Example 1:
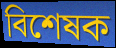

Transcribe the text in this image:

বিশেষক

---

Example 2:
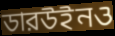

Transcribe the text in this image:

ডারউইনও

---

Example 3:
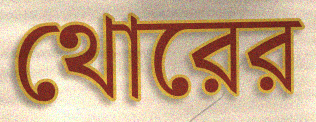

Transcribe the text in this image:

থোরের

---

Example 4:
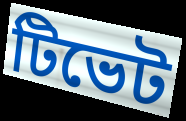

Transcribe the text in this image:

টিভেট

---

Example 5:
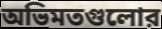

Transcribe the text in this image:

অভিমতগুলোর